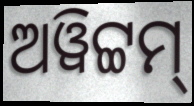
ଅୱିଟ୍ଟମ୍